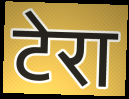
टेरा